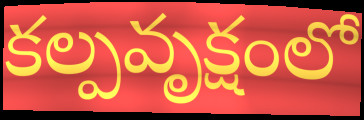
కల్పవృక్షంలో